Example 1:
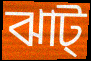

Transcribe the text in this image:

ঝাট্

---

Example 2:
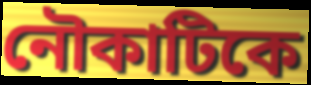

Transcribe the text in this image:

নৌকাটিকে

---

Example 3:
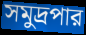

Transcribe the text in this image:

সমুদ্রপার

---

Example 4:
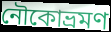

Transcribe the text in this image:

নৌকোভ্রমণ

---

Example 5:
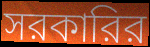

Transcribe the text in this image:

সরকারির